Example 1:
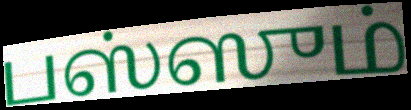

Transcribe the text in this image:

பஸ்ஸும்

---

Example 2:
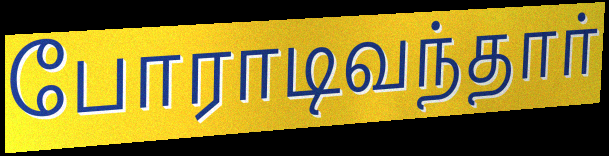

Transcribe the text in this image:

போராடிவந்தார்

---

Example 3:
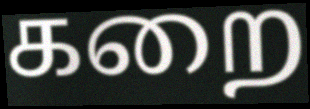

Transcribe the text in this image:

கறை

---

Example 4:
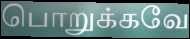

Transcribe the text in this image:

பொறுக்கவே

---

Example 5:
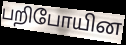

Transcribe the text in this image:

பறிபோயின